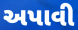
અપાવી